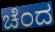
ಚೆಂದ